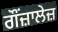
ਗੌਂਜ਼ਾਲੇਜ਼